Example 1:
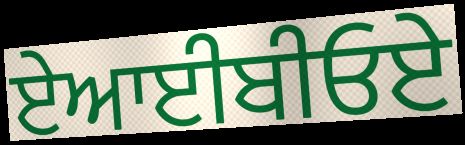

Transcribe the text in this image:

ਏਆਈਬੀਓਏ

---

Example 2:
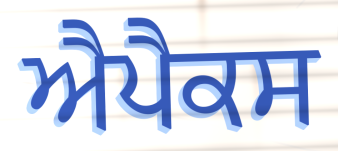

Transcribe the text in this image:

ਐਪੈਕਸ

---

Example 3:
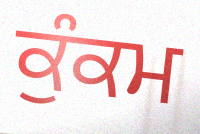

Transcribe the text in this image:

ਕੁੰਕਮ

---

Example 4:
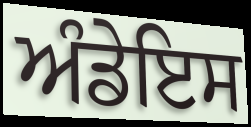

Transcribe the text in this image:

ਅੰਡੇਇਸ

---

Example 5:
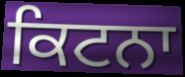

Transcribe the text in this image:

ਕਿਟਨਾ